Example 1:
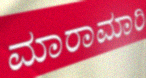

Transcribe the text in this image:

ಮಾರಾಮಾರಿ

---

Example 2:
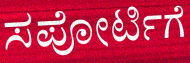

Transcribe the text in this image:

ಸಪೋರ್ಟಿಗೆ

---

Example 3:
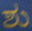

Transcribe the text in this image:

ಶು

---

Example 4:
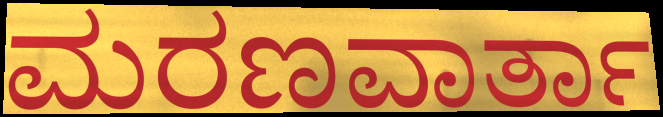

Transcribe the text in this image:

ಮರಣವಾರ್ತಾ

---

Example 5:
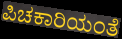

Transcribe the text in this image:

ಪಿಚಕಾರಿಯಂತೆ